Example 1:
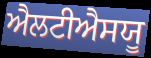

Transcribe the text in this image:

ਐਲਟੀਐਸਯੂ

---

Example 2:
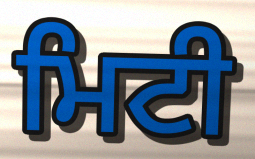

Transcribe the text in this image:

ਮਿਟੀ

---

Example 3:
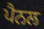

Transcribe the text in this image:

ਪੈਨਲ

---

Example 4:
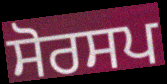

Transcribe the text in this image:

ਸੋਰਸਪ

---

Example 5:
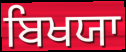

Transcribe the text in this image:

ਬਿਖਯਾ